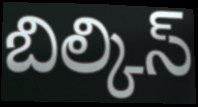
బిల్కిస్